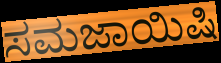
ಸಮಜಾಯಿಷಿ